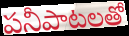
పనీపాటలతో